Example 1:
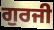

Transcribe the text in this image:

ਗੁਰਜੀ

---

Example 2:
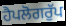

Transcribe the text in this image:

ਹੈਪਲੋਗਰੁੱਪ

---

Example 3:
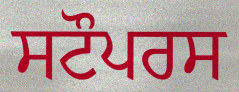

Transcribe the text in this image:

ਸਟੌਪਰਸ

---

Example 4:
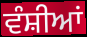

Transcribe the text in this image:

ਵੰਸ਼ੀਆਂ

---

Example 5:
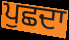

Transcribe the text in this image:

ਪੁਛਦਾ